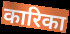
कारिका